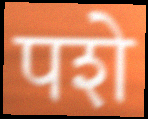
पशे